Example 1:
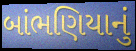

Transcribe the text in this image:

બાંભણિયાનું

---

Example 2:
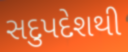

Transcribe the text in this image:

સદુપદેશથી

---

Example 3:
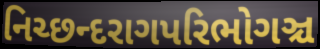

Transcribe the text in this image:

નિચ્છન્દરાગપરિભોગઞ્ચ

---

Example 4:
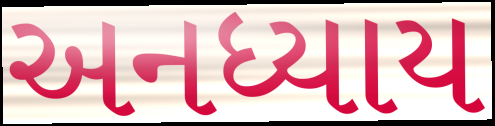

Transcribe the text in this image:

અનધ્યાય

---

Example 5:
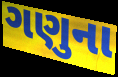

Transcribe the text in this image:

ગણુના